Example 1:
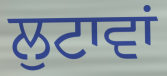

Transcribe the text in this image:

ਲੁਟਾਵਾਂ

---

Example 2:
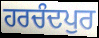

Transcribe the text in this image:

ਹਰਚੰਦਪੁਰ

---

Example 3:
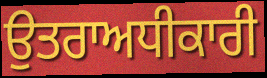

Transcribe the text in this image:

ਉਤਰਾਅਧੀਕਾਰੀ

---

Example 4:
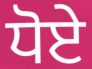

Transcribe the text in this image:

ਧੋਏ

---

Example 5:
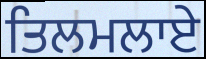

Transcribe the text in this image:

ਤਿਲਮਲਾਏ